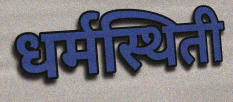
धर्मस्थिती